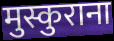
मुस्कुराना